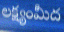
లక్ష్యంమీద